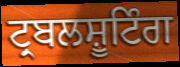
ਟ੍ਰਬਲਸ਼ੂਟਿੰਗ